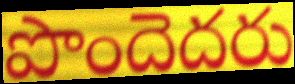
పొందెదరు